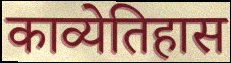
काव्येतिहास